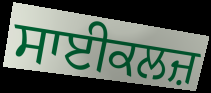
ਸਾਈਕਲਜ਼